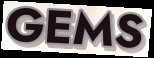
GEMS